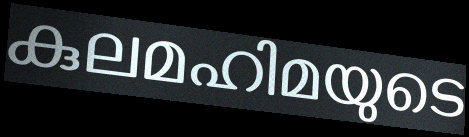
കുലമഹിമയുടെ